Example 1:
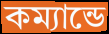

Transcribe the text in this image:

কম্যান্ডে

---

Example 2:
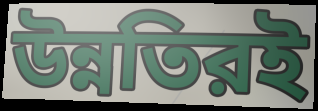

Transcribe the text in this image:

উন্নতিরই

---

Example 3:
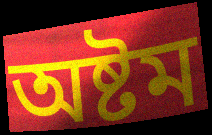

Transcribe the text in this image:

অষ্টম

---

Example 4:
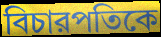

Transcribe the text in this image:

বিচারপতিকে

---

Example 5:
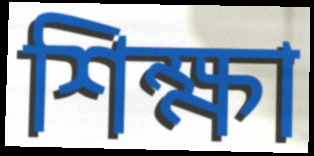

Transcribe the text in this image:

শিক্ষা